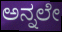
ಅನ್ನಲೇ